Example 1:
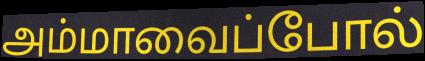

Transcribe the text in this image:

அம்மாவைப்போல்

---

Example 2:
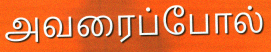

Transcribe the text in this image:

அவரைப்போல்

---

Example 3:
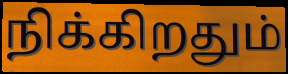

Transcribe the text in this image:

நிக்கிறதும்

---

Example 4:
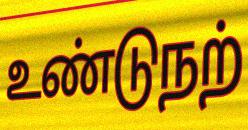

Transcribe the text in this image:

உண்டுநற்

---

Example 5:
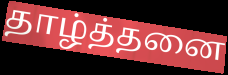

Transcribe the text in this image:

தாழ்த்தனை